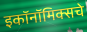
इकॉनॉमिक्सचे